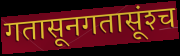
गतासूनगतासूंश्च